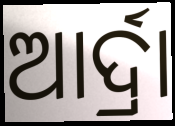
ଆର୍ଦ୍ରା